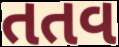
તતવ